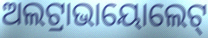
ଅଲଟ୍ରାଭାୟୋଲେଟ୍